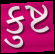
કુષ્ટ